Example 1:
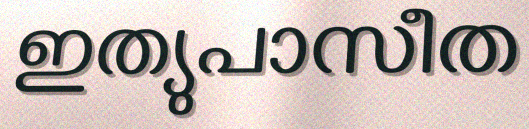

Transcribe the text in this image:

ഇത്യുപാസീത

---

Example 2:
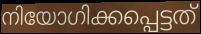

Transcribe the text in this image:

നിയോഗിക്കപ്പെട്ടത്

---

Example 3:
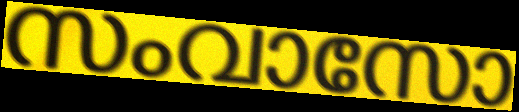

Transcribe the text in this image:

സംവാസോ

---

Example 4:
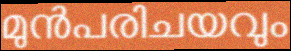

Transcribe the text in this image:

മുൻപരിചയവും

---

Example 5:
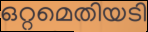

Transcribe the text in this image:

ഒറ്റമെതിയടി